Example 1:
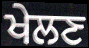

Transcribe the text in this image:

ਖੇਲਣ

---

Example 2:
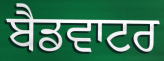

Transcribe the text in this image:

ਬੈਡਵਾਟਰ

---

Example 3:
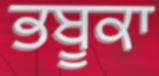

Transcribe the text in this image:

ਭਬੂਕਾ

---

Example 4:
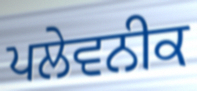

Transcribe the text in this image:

ਪਲੇਵਨੀਕ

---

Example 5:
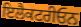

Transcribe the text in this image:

ਇਲੈਕਟਰੀਓਨ